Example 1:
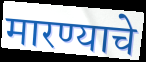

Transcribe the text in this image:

मारण्याचे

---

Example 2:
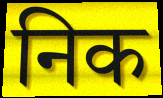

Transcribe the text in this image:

निक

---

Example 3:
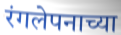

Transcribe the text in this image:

रंगलेपनाच्या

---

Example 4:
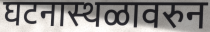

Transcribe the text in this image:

घटनास्थळावरुन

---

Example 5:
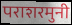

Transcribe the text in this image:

पराशरमुनी